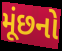
મૂંછનો